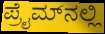
ಪ್ರೈಮ್‌ನಲ್ಲಿ